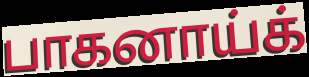
பாகனாய்க்